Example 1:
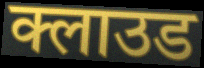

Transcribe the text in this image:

क्‍लाउड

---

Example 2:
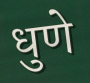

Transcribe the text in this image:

धुणे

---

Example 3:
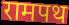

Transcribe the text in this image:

रामपथ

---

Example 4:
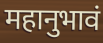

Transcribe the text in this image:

महानुभावं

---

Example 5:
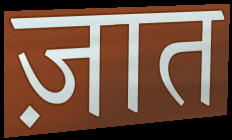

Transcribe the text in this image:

ज़ात